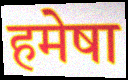
हमेषा